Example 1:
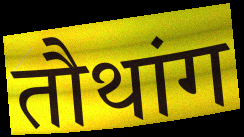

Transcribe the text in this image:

तौथांग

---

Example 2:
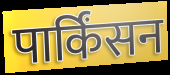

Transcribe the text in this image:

पार्किंसन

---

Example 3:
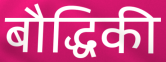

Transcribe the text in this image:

बौद्धिकी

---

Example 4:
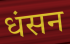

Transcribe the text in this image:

धंसन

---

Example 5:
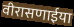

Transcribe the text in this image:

वीरासणाईया